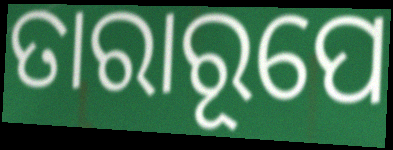
ତାରାରୂପେ